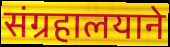
संग्रहालयाने